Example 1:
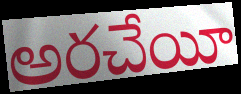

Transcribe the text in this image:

అరచేయీ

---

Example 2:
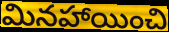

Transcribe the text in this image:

మినహాయించి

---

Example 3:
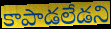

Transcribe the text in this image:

కాపాడలేడని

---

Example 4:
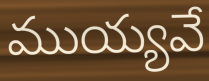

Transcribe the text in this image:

ముయ్యవే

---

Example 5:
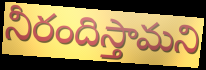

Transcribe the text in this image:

నీరందిస్తామని